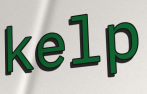
kelp